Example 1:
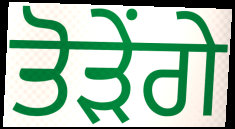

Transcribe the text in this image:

ਤੋੜੇਂਗੇ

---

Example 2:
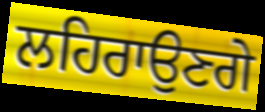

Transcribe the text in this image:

ਲਹਿਰਾਉਣਗੇ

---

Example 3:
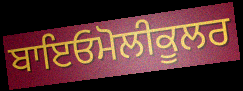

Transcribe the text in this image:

ਬਾਇਓਮੋਲੀਕੂਲਰ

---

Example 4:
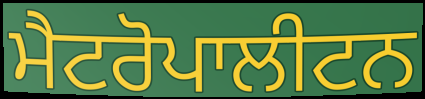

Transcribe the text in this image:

ਮੈਟਰੋਪਾਲੀਟਨ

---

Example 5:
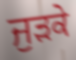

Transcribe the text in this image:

ਜੁੜਕੇ